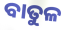
ବାତୁଳ